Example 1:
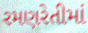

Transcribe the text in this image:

રમણરેતીમાં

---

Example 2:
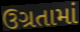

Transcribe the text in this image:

ઉગ્રતામાં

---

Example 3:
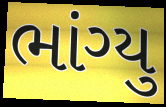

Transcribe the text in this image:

ભાંગ્યુ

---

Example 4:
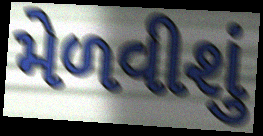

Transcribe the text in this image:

મેળવીશું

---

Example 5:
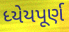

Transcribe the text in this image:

ધ્યેયપૂર્ણ